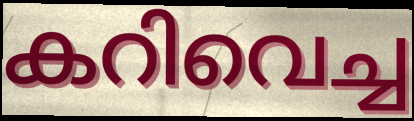
കറിവെച്ച